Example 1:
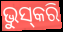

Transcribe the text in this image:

ଭୁସ୍‌କରି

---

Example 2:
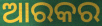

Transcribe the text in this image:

ଆରକର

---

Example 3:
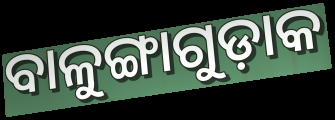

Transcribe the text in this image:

ବାଳୁଙ୍ଗାଗୁଡ଼ାକ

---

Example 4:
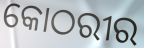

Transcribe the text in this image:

କୋଠରୀର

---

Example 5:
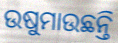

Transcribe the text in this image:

ଉଷୁମାଉଛନ୍ତି